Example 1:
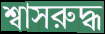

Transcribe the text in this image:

শ্বাসরুদ্ধ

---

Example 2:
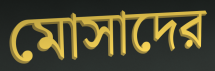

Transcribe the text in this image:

মোসাদের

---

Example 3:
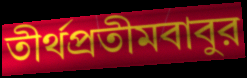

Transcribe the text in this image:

তীর্থপ্রতীমবাবুর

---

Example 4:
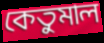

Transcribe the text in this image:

কেতুমাল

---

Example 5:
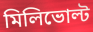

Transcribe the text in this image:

মিলিভোল্ট